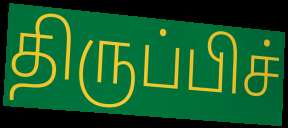
திருப்பிச்